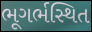
ભૂગર્ભસ્થિત